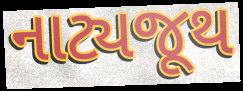
નાટ્યજૂથ